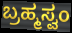
ಬ್ರಹ್ಮಸ್ವಂ